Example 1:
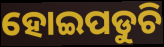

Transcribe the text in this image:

ହୋଇପଡୁଚି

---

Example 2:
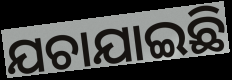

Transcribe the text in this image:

ଯଚାଯାଇଛି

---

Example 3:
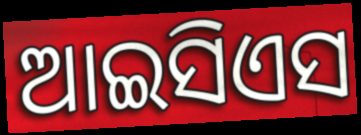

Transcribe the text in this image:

ଆଇସିଏସ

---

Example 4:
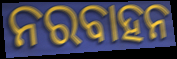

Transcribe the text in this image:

ନରବାହନ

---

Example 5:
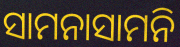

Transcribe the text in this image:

ସାମନାସାମନି